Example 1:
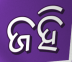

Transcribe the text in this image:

ଜହି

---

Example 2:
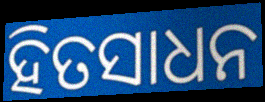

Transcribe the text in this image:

ହିତସାଧନ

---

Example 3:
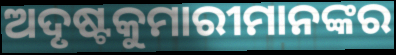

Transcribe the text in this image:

ଅଦୃଷ୍ଟକୁମାରୀମାନଙ୍କର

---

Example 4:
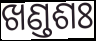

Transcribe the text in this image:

ଖଣ୍ଡଶଃ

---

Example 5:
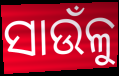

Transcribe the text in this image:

ସାଉଁଳୁ